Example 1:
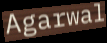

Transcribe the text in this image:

Agarwal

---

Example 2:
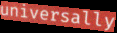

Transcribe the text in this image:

universally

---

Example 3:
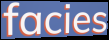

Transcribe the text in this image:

facies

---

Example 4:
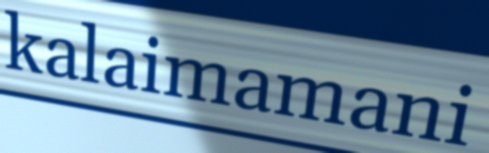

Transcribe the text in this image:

kalaimamani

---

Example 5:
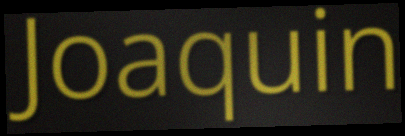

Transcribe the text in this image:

Joaquin